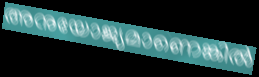
അനുയോജ്യമാണെങ്കിൽ